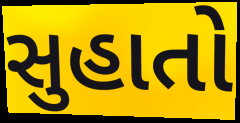
સુહાતો